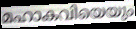
മഹാകവിയെയും